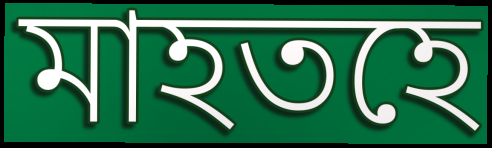
মাহতহে